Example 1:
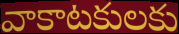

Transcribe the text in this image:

వాకాటకులకు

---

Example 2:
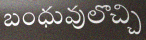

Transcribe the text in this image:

బంధువులొచ్చి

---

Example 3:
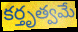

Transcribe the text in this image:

కర్తృత్వమే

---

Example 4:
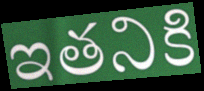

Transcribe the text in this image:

ఇతనికి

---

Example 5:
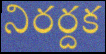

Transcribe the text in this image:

నిరర్దక